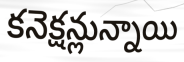
కనెక్షన్లున్నాయి